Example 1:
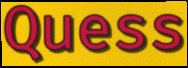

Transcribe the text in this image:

Quess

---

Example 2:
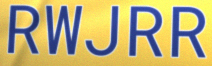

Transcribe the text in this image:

RWJRR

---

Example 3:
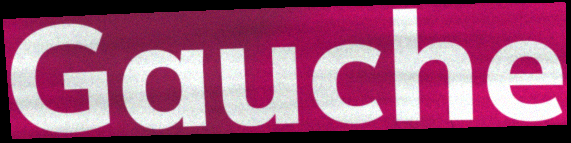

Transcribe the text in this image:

Gauche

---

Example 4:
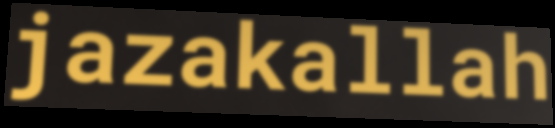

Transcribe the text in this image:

jazakallah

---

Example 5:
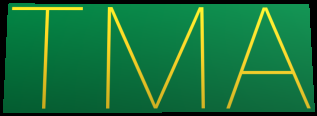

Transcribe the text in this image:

TMA